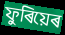
ফুৰিয়েৰ